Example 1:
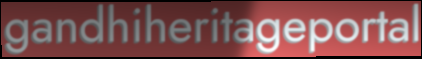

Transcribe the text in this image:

gandhiheritageportal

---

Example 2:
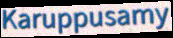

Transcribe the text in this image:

Karuppusamy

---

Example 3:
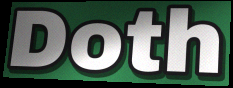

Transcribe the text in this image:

Doth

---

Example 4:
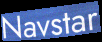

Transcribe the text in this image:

Navstar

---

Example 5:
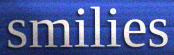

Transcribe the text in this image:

smilies